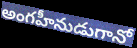
అంగహీనుడుగానో